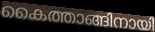
കൈത്താങ്ങിനായി